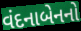
વંદનાબેનનો